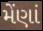
મેંણાં